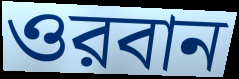
ওরবান